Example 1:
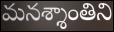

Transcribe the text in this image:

మనశ్శాంతిని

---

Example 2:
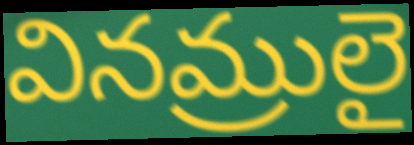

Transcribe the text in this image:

వినమ్రులై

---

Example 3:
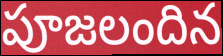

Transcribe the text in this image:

పూజలందిన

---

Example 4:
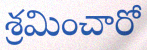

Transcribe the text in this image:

శ్రమించారో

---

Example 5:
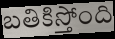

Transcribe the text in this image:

బతికిస్తోంది